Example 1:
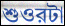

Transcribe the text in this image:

শুওরটা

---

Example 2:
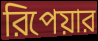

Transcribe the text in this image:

রিপেয়ার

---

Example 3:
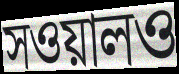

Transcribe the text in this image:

সওয়ালও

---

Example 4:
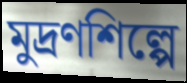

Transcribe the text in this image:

মুদ্রণশিল্পে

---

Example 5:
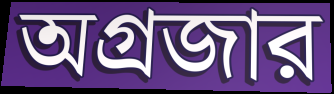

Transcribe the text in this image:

অগ্রজার